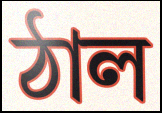
ঠাল